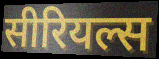
सीरियल्स